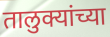
तालुक्यांच्या